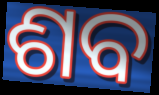
ଶବ